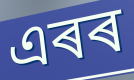
এৰৰ